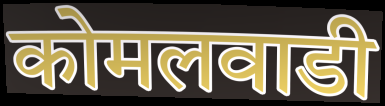
कोमलवाडी